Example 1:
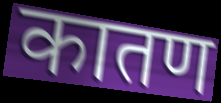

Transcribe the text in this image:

कातण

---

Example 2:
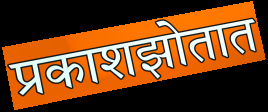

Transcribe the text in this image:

प्रकाशझोतात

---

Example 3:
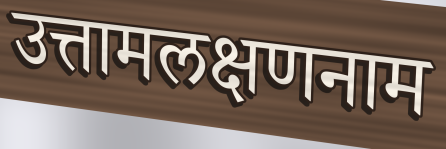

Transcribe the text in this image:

उत्तामलक्षणनाम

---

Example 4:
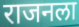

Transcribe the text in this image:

राजनला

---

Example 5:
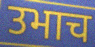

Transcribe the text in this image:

उभाच